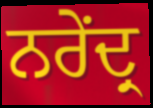
ਨਰੇਂਦ੍ਰ